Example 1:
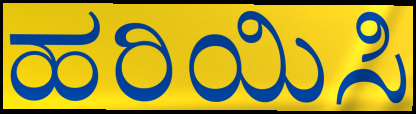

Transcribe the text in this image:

ಹರಿಯಿಸಿ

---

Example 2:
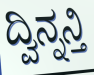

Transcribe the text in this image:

ದ್ವಿನ್ನನ್ತಿ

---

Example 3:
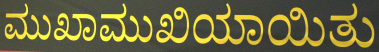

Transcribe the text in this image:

ಮುಖಾಮುಖಿಯಾಯಿತು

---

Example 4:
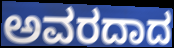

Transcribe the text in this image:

ಅವರದಾದ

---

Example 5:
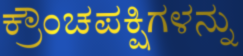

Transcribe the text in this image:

ಕ್ರೌಂಚಪಕ್ಷಿಗಳನ್ನು